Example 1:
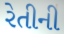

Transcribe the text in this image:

રેતીની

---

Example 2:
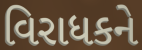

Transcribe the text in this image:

વિરાધકને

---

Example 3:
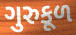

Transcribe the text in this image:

ગુરુકૂળ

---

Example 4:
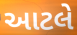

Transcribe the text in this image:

આટલે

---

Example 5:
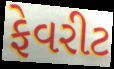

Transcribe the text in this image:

ફેવરીટ